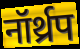
नॉर्थ्रप